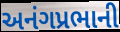
અનંગપ્રભાની